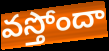
వస్తోందా